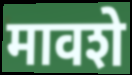
मावशे